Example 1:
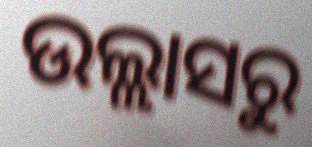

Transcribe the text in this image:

ଉଲ୍ଲାସରୁ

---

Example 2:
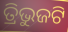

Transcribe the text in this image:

ତ୍ରିଭୁଜଟି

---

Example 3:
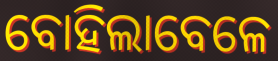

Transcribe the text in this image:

ବୋହିଲାବେଳେ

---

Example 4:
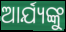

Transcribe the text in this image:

ଆର୍ଯ୍ୟଙ୍କୁ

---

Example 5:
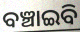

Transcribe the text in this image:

ବଞ୍ଚାଇବି